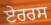
ਏਰਰਸ